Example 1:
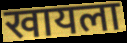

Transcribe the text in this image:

खायला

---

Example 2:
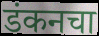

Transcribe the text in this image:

डंकनचा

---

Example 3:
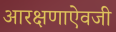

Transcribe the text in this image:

आरक्षणाऐवजी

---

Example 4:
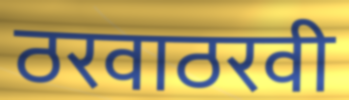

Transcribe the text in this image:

ठरवाठरवी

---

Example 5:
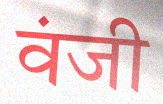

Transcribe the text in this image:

वंजी